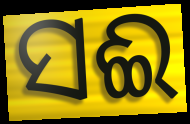
ସଈ